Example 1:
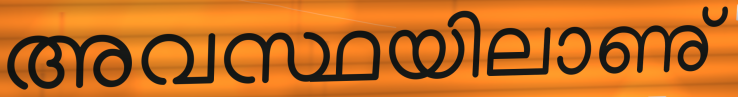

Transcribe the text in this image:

അവസ്ഥയിലാണു്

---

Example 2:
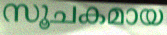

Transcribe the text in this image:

സൂചകമായ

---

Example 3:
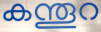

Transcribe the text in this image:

കന്തൂറ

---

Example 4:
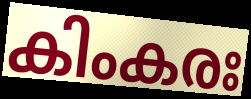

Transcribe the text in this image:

കിംകരഃ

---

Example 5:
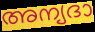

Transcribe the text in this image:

അന്യദാ